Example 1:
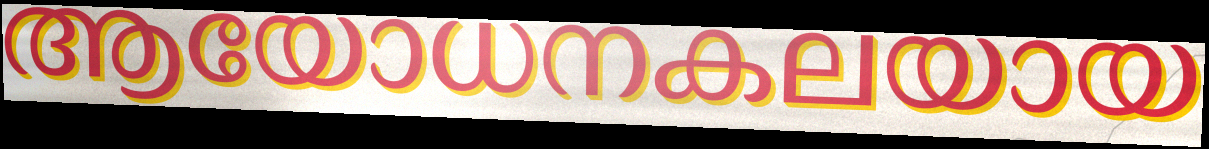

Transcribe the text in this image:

ആയോധനകലയായ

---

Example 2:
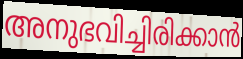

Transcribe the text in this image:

അനുഭവിച്ചിരിക്കാൻ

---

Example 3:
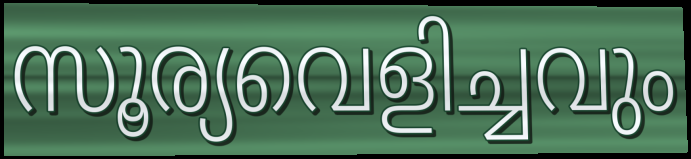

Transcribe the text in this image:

സൂര്യവെളിച്ചവും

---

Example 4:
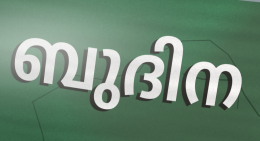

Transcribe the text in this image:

ബുദിന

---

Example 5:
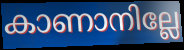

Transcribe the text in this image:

കാണാനില്ലേ